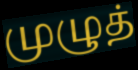
முழுத்